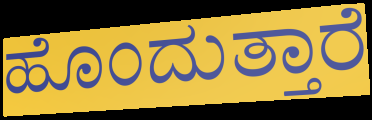
ಹೊಂದುತ್ತಾರೆ